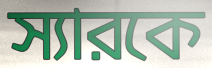
স্যারকে